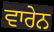
ਵਾਰੇਨ